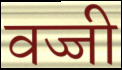
वज्जी